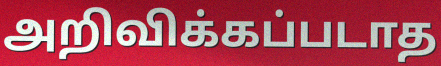
அறிவிக்கப்படாத